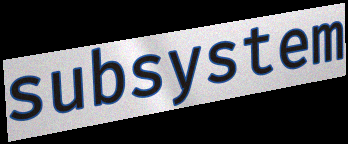
subsystem